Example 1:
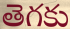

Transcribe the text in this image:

తెగకు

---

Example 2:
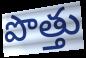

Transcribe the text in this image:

పొత్తు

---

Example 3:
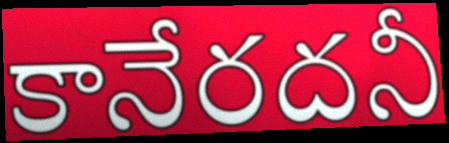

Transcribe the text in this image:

కానేరదనీ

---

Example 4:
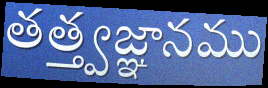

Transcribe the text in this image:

తత్త్వజ్ఞానము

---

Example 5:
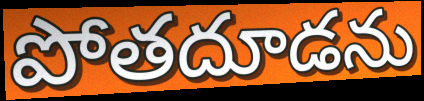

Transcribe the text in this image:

పోతదూడను